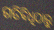
ଗତିବିଧିଠାରୁ